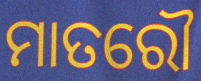
ମାତରୌ